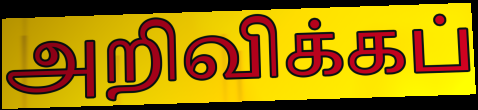
அறிவிக்கப்